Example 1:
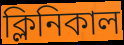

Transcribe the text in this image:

ক্লিনিকাল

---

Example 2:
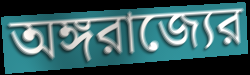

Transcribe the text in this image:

অঙ্গরাজ্যের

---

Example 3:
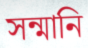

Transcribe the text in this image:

সন্মানি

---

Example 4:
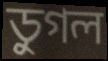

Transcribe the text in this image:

ডুগল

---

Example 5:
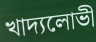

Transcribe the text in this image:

খাদ্যলোভী